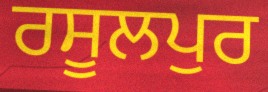
ਰਸੂਲਪੁਰ